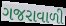
ગજરાવાળી